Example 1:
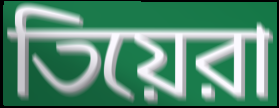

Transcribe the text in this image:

তিয়েরা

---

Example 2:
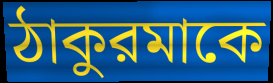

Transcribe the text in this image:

ঠাকুরমাকে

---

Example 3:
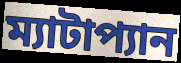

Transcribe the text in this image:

ম্যাটাপ্যান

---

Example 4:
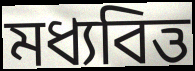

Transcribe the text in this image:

মধ্যবিত্ত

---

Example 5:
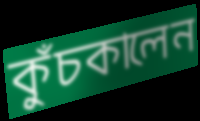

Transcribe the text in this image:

কুঁচকালেন